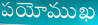
పయోముఖ